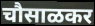
चौसाळकर